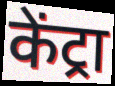
केंट्रा